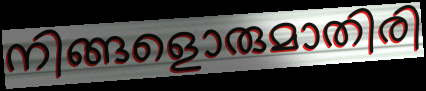
നിങ്ങളൊരുമാതിരി